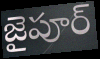
జైపూర్